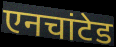
एनचांटेड